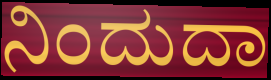
ನಿಂದುದಾ